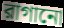
রাগানো